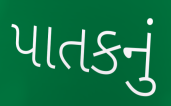
પાતકનું